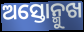
ଅସ୍ତୋନ୍ମୁଖ